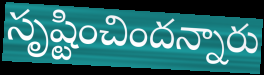
సృష్టించిందన్నారు